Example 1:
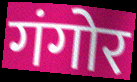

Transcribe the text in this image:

गंगोर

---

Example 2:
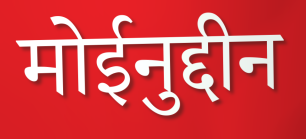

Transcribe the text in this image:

मोईनुद्दीन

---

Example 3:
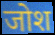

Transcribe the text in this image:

जोश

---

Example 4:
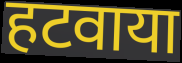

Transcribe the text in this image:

हटवाया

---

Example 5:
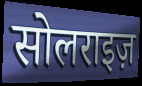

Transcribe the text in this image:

सोलराइज़